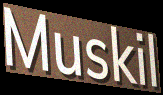
Muskil